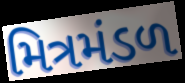
મિત્રમંડળ